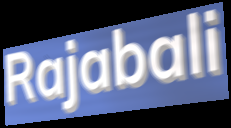
Rajabali